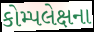
કોમ્પલેક્ષના